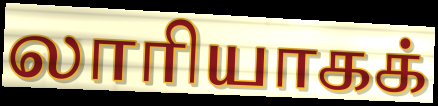
லாரியாகக்